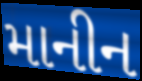
માનીન